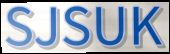
SJSUK